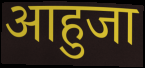
आहुजा